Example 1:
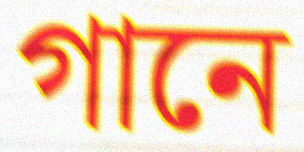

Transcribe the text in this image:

গানে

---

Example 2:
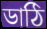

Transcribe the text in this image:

ডাঠি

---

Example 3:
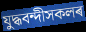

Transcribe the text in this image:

যুদ্ধবন্দীসকলৰ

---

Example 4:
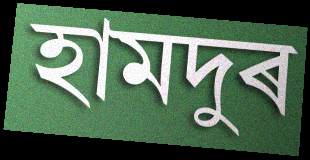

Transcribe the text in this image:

হামদুৰ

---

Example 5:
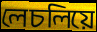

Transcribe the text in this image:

লেচলিয়ে